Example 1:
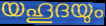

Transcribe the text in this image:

യഹൂദയും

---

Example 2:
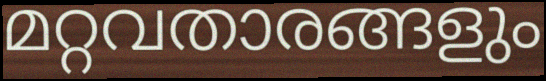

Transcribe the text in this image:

മറ്റവതാരങ്ങളും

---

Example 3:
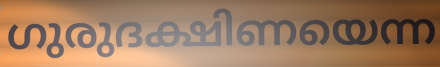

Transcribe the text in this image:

ഗുരുദക്ഷിണയെന്ന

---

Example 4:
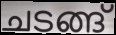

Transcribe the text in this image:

ചടങ്ങ്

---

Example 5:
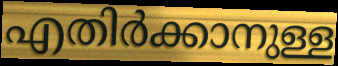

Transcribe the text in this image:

എതിർക്കാനുള്ള